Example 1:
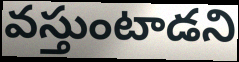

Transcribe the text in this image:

వస్తుంటాడని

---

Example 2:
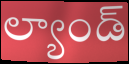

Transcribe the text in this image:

ల్యాండ్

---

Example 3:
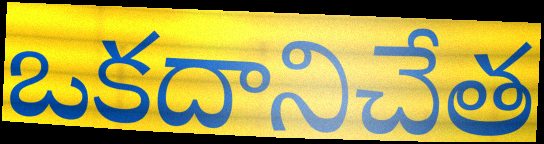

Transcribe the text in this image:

ఒకదానిచేత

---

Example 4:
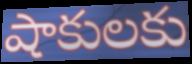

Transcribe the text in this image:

షాకులకు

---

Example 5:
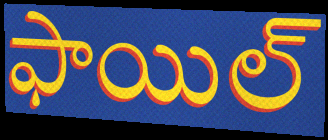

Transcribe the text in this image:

ఫాయిల్